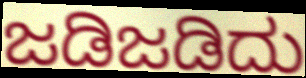
ಜಡಿಜಡಿದು